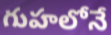
గుహలోనే